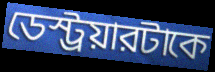
ডেস্ট্রয়ারটাকে